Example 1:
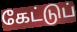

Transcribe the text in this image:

கேட்டுப்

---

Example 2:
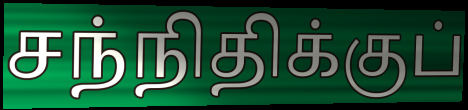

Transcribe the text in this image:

சந்நிதிக்குப்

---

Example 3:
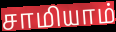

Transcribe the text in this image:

சாமியாம்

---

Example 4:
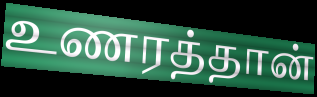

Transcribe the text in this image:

உணரத்தான்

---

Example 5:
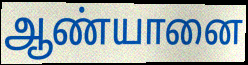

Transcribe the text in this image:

ஆண்யானை